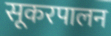
सूकरपालन